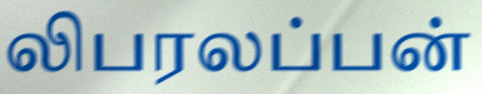
லிபரலப்பன்